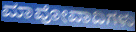
ಮಾವೋವಾದಿಗಳು